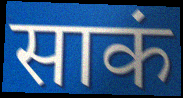
साकं